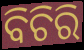
ବିଚିରି